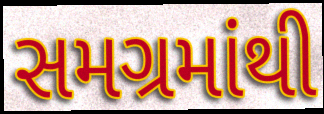
સમગ્રમાંથી